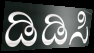
ಡಿಡಿಸಿ